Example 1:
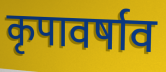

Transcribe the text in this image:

कृपावर्षाव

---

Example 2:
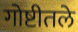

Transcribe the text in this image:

गोष्टीतले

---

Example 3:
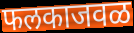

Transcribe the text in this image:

फलकाजवळ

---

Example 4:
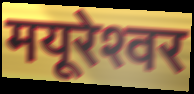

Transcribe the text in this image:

मयूरेश्वर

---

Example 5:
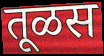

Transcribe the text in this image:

तूळस